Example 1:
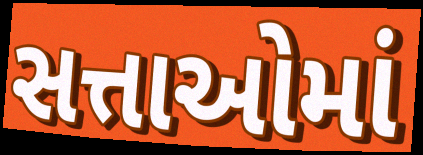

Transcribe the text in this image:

સત્તાઓમાં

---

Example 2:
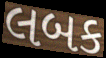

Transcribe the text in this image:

લબક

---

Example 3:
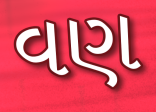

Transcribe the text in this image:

વણ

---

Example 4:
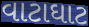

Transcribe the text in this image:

વાટાઘાટ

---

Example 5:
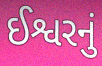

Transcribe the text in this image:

ઈશ્વરનું